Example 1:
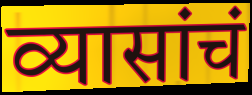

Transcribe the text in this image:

व्यासांचं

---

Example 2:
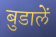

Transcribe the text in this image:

बुडालें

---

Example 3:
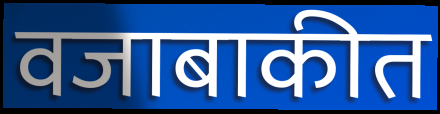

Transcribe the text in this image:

वजाबाकीत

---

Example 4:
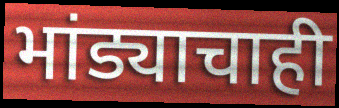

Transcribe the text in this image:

भांड्याचाही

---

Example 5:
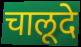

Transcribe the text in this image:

चालूदे